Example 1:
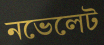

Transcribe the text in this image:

নভেলেট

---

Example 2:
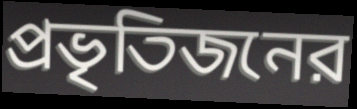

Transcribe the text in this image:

প্রভৃতিজনের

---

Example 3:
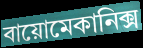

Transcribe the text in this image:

বায়োমেকানিক্স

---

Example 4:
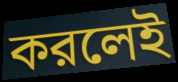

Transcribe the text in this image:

করলেই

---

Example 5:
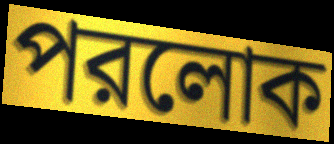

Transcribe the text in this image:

পরলোক